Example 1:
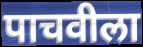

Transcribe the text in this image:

पाचवीला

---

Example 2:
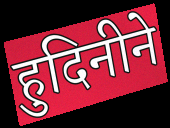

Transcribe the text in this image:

हुदिनीने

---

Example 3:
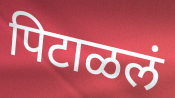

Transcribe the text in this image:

पिटाळलं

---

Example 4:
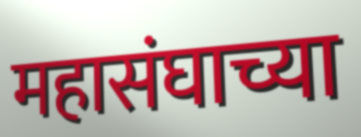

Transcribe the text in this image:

महासंघाच्या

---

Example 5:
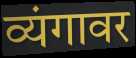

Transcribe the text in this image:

व्यंगावर